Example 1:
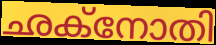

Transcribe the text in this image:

ഛക്നോതി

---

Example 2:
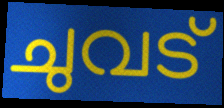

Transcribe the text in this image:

ചുവട്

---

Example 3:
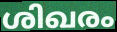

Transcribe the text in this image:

ശിഖരം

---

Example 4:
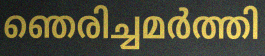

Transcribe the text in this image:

ഞെരിച്ചമർത്തി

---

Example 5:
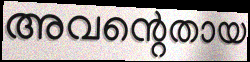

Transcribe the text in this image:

അവന്റെതായ